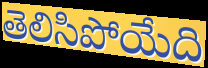
తెలిసిపోయేది